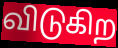
விடுகிற